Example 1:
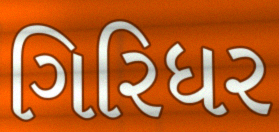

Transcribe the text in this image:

ગિરિધર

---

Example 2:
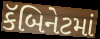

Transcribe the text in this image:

કૅબિનેટમાં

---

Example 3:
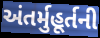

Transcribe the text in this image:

અંતર્મુહૂર્તની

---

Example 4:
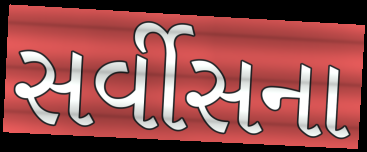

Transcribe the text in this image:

સર્વીસના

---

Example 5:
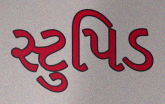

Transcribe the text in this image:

સ્ટુપિડ